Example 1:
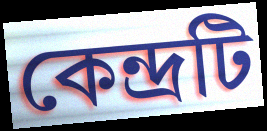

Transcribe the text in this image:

কেন্দ্রটি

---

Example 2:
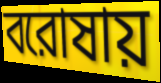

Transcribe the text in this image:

বরোষায়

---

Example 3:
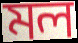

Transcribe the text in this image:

মল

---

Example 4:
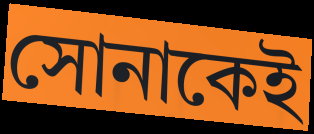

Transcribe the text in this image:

সোনাকেই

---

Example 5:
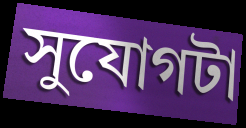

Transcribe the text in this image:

সুযোগটা